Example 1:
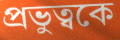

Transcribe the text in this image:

প্রভুত্বকে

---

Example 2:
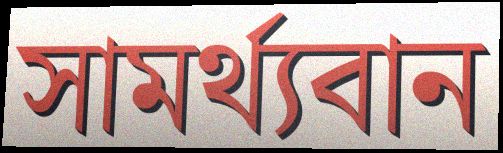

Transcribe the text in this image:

সামর্থ্যবান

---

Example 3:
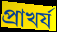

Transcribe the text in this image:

প্রাখর্য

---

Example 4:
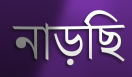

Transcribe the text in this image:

নাড়ছি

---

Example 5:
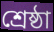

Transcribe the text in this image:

শ্রেষ্ঠা